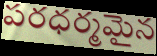
పరధర్మమైన